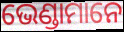
ଭେଣ୍ଡାମାନେ